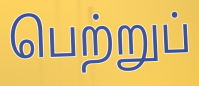
பெற்றுப்